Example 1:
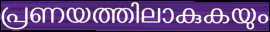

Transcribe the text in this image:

പ്രണയത്തിലാകുകയും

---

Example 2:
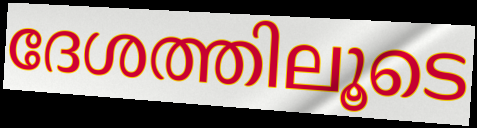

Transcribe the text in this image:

ദേശത്തിലൂടെ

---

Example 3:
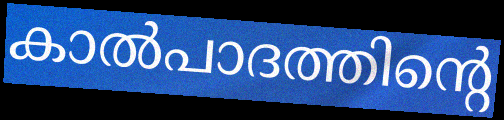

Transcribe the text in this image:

കാൽപാദത്തിന്റെ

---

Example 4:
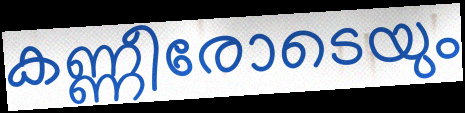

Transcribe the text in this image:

കണ്ണീരോടെയും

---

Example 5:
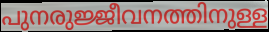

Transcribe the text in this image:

പുനരുജ്ജീവനത്തിനുള്ള